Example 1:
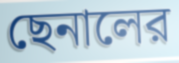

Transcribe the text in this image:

ছেনালের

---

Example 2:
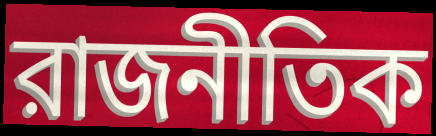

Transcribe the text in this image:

রাজনীতিক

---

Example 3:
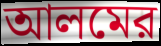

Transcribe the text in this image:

আলমের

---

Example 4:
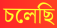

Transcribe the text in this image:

চলেছি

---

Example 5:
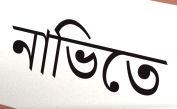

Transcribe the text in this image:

নাভিতে